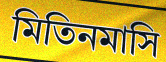
মিতিনমাসি